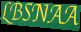
LBSNAA